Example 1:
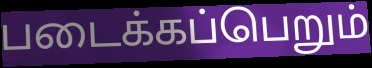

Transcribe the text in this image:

படைக்கப்பெறும்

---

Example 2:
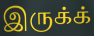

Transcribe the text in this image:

இருக்க்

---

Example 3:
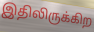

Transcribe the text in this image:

இதிலிருக்கிற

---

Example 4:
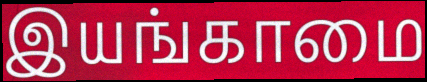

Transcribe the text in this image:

இயங்காமை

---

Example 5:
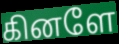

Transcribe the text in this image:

கினளே